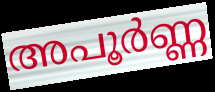
അപൂർണ്ണ